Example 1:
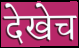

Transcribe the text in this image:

देखेच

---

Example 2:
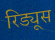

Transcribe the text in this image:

रिड्यूस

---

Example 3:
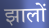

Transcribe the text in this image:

झालों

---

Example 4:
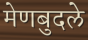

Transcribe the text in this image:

मेणबुदले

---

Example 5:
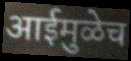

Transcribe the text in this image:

आईमुळेच